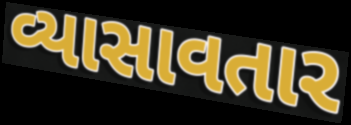
વ્યાસાવતાર